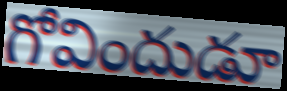
గోవిందుడూ